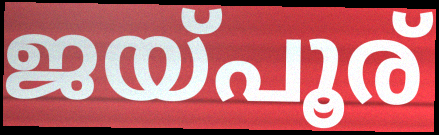
ജയ്പൂര്